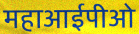
महाआईपीओ